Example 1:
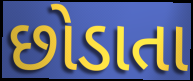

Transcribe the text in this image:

છોડાતા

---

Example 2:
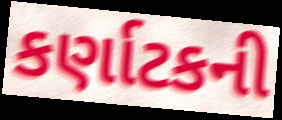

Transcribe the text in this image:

કર્ણાટકની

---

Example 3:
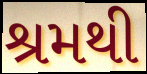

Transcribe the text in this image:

શ્રમથી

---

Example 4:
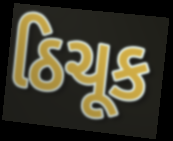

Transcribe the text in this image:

ઠિચૂક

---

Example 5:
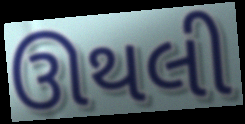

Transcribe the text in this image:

ઊથલી